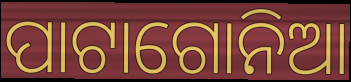
ପାଟାଗୋନିଆ